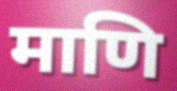
माणि